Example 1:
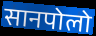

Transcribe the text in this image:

सानपोलो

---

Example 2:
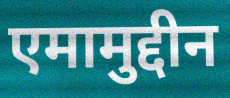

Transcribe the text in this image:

एमामुद्दीन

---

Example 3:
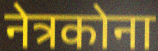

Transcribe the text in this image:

नेत्रकोना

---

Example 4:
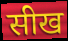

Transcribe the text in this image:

सीख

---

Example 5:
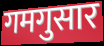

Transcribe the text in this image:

गमगुसार